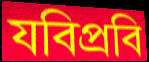
যবিপ্রবি